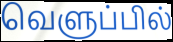
வெளுப்பில்